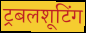
ट्रबलशूटिंग